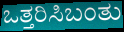
ಒತ್ತರಿಸಿಬಂತು